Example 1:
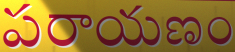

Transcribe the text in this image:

పరాయణం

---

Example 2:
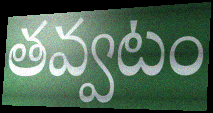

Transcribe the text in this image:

తవ్వటం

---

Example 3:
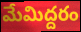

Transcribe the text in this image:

మేమిద్దరం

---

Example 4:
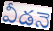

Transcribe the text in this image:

వీడనె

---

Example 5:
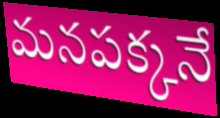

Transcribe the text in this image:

మనపక్కనే